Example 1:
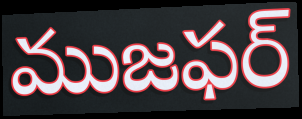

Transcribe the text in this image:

ముజఫర్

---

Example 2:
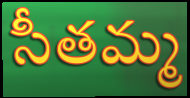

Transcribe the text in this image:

సీతమ్మ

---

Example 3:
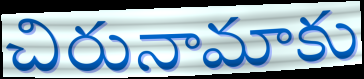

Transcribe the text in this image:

చిరునామాకు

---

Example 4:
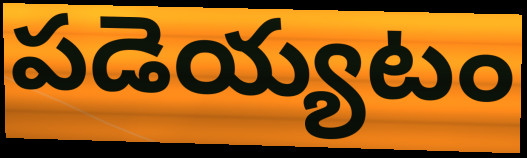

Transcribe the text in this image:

పడెయ్యటం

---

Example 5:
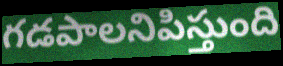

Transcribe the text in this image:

గడపాలనిపిస్తుంది